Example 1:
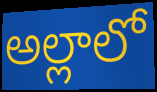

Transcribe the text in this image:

అల్లాలో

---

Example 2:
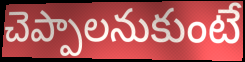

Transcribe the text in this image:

చెప్పాలనుకుంటే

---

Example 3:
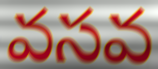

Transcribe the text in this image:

వసవ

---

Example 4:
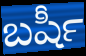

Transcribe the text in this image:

బషీర్‍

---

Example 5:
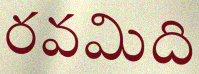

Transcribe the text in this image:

రవమిది